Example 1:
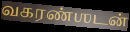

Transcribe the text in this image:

வகரண்ஶடன்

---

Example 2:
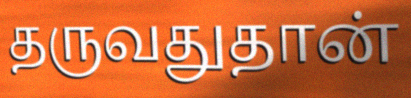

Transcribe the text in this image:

தருவதுதான்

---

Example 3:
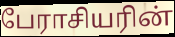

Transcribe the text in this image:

பேராசியரின்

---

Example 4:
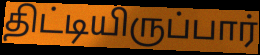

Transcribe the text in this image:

திட்டியிருப்பார்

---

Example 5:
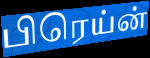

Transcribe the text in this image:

பிரெய்ன்